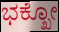
ಭಕ್ಖೋ